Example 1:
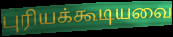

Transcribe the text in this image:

புரியக்கூடியவை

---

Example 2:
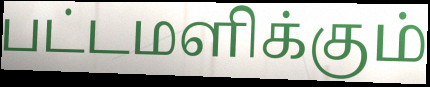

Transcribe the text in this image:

பட்டமளிக்கும்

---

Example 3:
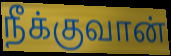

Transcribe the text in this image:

நீக்குவான்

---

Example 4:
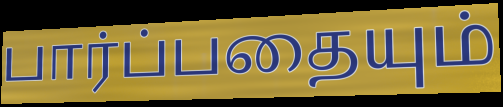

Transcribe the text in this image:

பார்ப்பதையும்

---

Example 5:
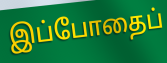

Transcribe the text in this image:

இப்போதைப்